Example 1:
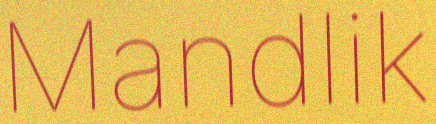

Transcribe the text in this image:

Mandlik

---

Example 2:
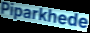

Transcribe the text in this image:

Piparkhede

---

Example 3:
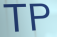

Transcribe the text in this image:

TP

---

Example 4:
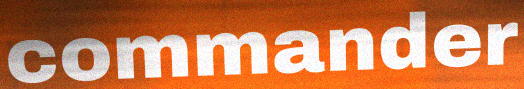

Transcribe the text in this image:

commander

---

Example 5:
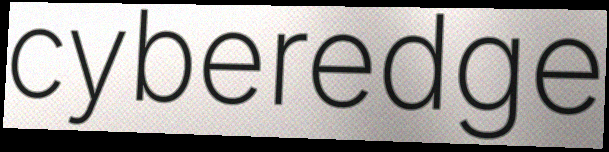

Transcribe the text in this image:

cyberedge